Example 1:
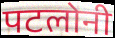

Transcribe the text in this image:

पटलोनी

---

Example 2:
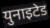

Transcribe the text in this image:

युनाइटेड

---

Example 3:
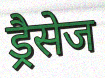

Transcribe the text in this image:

ड्रैसेज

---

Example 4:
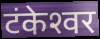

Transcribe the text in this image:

टंकेश्वर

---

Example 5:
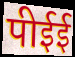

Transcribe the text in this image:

पीईई